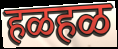
हळहळ